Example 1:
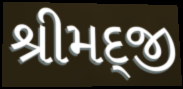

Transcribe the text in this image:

શ્રીમદ્જી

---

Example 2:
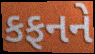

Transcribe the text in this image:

કફનને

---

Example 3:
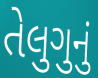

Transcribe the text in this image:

તેલુગુનું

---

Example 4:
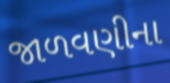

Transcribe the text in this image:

જાળવણીના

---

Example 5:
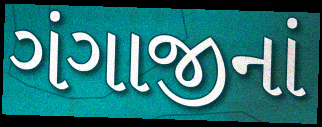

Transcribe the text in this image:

ગંગાજીનાં